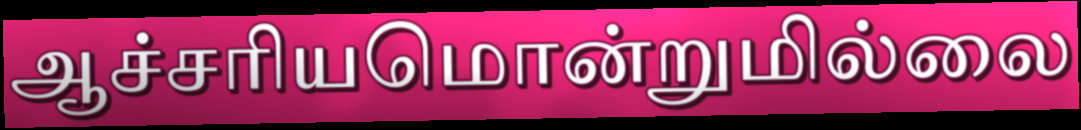
ஆச்சரியமொன்றுமில்லை